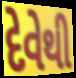
દેવેથી